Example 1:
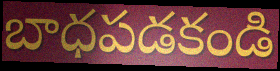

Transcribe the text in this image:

బాధపడకండి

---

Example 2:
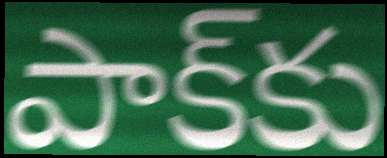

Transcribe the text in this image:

పాక్‌కు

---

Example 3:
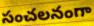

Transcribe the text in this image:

సంచలనంగా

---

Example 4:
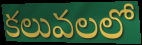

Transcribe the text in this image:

కలువలలో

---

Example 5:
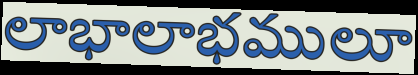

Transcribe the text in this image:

లాభాలాభములూ